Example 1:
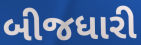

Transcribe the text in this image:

બીજધારી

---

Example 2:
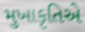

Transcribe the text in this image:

મુખાકૃતિએ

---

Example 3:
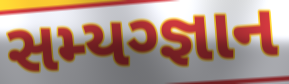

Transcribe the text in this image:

સમ્યગ્જ્ઞાન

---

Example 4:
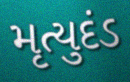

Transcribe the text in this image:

મૃત્યુદંડ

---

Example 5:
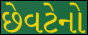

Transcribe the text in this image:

છેવટેનો